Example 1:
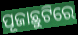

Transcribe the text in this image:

ପୂଜାଛୁଟିରେ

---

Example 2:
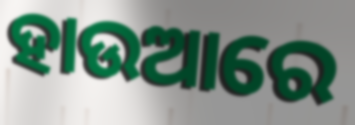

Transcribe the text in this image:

ହାଉଆରେ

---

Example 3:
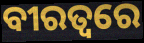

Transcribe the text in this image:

ବୀରତ୍ୱରେ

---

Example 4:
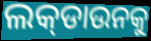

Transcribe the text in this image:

ଲକ୍‌ଡାଉନକୁ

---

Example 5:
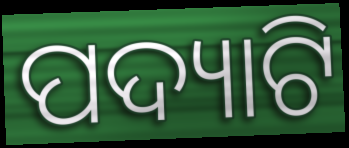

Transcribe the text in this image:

ପଦ୍ୟାଟି